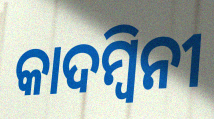
କାଦମ୍ୱିନୀ